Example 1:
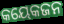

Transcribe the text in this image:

କୟେକଜନ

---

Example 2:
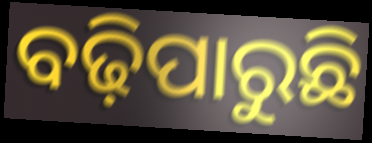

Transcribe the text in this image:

ବଢ଼ିପାରୁଛି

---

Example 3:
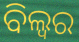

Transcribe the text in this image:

ବିଲ୍ୱର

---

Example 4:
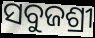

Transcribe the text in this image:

ସବୁଜଶ୍ରୀ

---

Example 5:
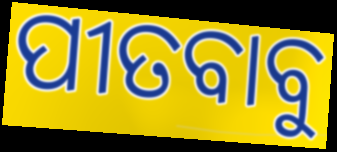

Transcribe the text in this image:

ପୀତବାବୁ